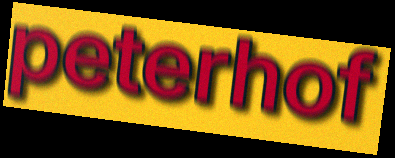
peterhof